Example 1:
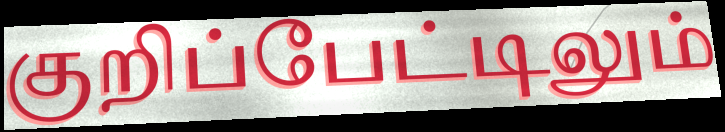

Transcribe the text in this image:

குறிப்பேட்டிலும்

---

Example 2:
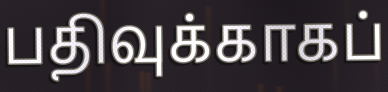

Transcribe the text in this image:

பதிவுக்காகப்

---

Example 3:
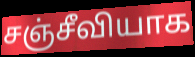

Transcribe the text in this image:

சஞ்சீவியாக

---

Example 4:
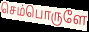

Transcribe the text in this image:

செம்பொருளே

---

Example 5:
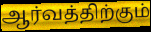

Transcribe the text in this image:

ஆர்வத்திற்கும்